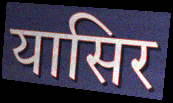
यासिर